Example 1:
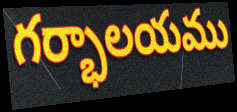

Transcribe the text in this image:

గర్భాలయము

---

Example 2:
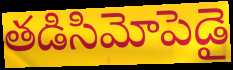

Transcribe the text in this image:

తడిసిమోపెడై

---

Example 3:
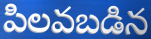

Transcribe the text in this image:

పిలవబడిన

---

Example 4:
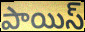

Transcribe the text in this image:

పాయిస్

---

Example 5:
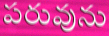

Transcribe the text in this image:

పరువును